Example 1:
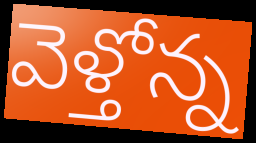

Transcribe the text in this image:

వెళ్తోన్న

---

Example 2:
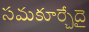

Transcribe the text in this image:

సమకూర్చేదై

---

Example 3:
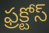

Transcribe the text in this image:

ఫ్రక్టోస్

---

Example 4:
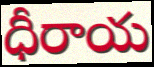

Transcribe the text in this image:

ధీరాయ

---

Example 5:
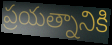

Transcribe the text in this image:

ప్రయత్నానికి